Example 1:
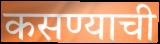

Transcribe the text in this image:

कसण्याची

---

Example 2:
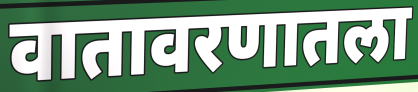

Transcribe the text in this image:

वातावरणातला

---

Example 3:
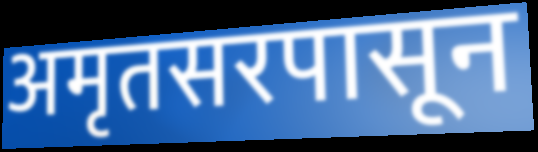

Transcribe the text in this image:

अमृतसरपासून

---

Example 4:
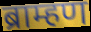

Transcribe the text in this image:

ब्राम्हण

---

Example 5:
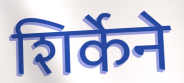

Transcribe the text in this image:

शिर्केने